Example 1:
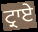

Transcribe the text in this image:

ਟ੍ਰਾਏ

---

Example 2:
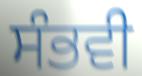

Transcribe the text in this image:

ਸੰਭਵੀ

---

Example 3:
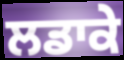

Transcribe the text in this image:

ਲਡਾਕੇ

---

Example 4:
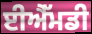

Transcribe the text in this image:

ਈਐੱਮਡੀ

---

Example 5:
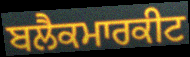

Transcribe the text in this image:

ਬਲੈਕਮਾਰਕੀਟ